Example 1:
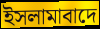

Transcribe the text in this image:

ইসলামাবাদে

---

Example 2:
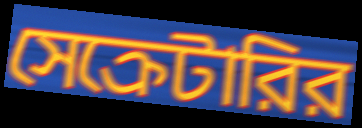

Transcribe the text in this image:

সেক্রেটারির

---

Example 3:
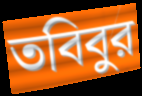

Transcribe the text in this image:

তবিবুর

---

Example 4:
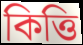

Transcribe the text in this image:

কিত্তি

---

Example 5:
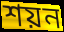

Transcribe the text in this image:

শয়ন